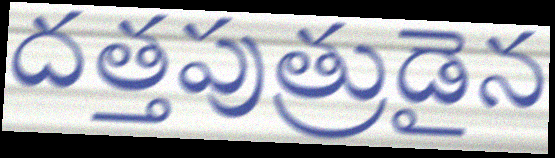
దత్తపుత్రుడైన